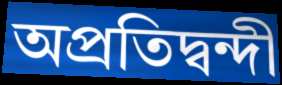
অপ্ৰতিদ্বন্দী